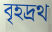
বৃহদ্রথ